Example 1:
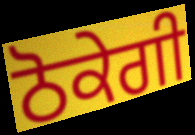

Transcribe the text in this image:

ਠੋਕੇਗੀ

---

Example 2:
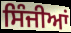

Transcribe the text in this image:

ਸਿੰਜੀਆਂ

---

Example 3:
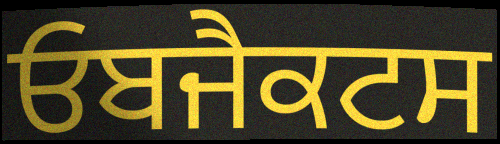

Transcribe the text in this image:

ਓਬਜੈਕਟਸ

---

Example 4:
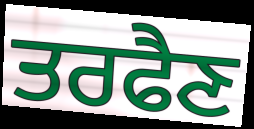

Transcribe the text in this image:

ਤਰਫੈਣ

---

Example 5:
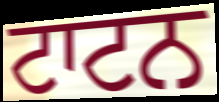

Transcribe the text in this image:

ਟਾਟਨ